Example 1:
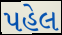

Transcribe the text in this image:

પહેલ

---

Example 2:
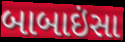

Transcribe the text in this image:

બાબાઇંસા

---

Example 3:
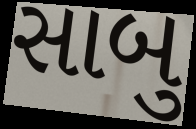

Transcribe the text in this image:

સાબુ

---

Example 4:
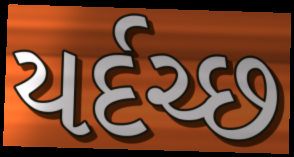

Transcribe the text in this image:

યર્દચ્છ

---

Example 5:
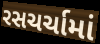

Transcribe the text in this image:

રસચર્ચામાં